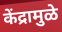
केंद्रामुळे